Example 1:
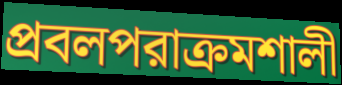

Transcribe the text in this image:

প্রবলপরাক্রমশালী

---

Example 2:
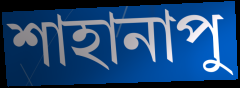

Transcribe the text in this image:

শাহানাপু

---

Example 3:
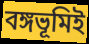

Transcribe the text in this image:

বঙ্গভূমিই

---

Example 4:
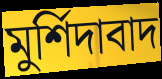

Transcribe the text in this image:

মুর্শিদাবাদ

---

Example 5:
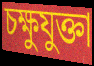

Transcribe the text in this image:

চক্ষুযুক্তা